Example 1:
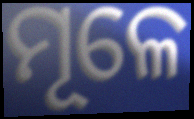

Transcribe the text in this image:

ମୂଳେ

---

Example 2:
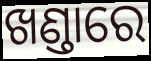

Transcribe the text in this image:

ଖଣ୍ଡାରେ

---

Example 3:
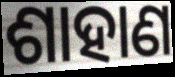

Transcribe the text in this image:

ଶାହାଣ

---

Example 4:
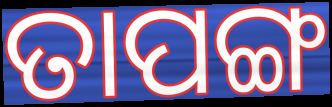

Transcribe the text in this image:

ତାପଙ୍ଗ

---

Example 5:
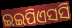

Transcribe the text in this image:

ଇଇପିଏସସି